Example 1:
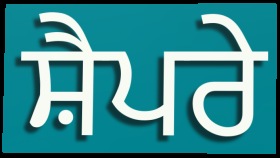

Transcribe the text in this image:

ਸ਼ੈਪਰੇ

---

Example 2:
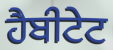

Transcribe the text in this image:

ਹੈਬੀਟੇਟ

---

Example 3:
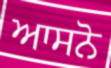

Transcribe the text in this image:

ਆਸਨੋ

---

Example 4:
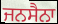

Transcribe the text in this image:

ਜਨਸੈਨਾ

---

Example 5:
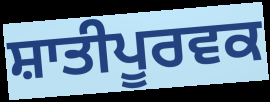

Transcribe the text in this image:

ਸ਼ਾਤੀਪੂਰਵਕ